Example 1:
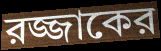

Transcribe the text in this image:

রজ্জাকের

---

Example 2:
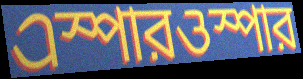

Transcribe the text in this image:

এস্পারওস্পার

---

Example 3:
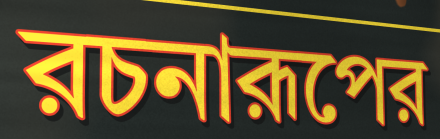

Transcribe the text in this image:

রচনারূপের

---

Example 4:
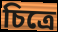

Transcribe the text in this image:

চিত্রে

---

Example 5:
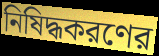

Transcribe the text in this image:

নিষিদ্ধকরণের